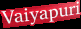
Vaiyapuri